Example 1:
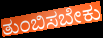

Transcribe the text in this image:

ತುಂಬಿಸಬೇಕು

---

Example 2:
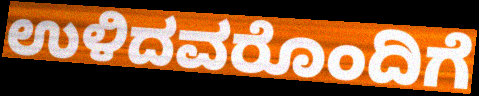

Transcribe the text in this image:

ಉಳಿದವರೊಂದಿಗೆ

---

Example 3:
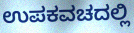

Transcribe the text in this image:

ಉಪಕವಚದಲ್ಲಿ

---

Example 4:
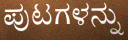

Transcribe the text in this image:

ಪುಟಗಳನ್ನು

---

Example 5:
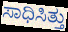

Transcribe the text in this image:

ಸಾಧಿಸಿತ್ತು